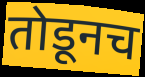
तोडूनच